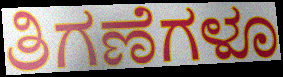
ತಿಗಣೆಗಳೂ